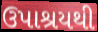
ઉપાશ્રયથી